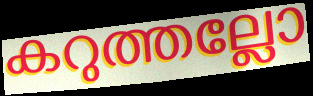
കറുത്തല്ലോ